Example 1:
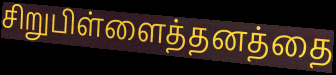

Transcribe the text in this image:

சிறுபிள்ளைத்தனத்தை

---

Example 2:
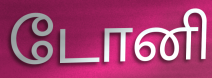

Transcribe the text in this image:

டோனி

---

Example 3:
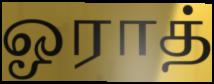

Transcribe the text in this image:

ஓராத்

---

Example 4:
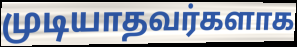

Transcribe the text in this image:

முடியாதவர்களாக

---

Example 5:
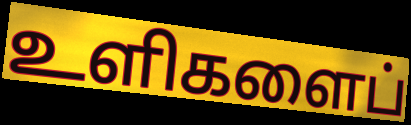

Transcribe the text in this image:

உளிகளைப்